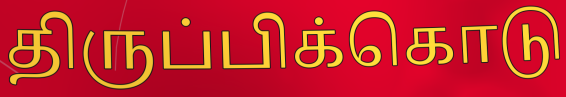
திருப்பிக்கொடு